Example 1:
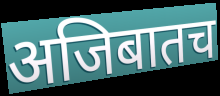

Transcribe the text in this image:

अजिबातच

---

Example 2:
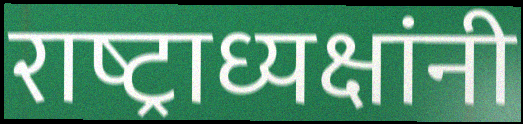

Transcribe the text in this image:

राष्ट्राध्यक्षांनी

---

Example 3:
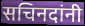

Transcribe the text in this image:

सचिनदांनी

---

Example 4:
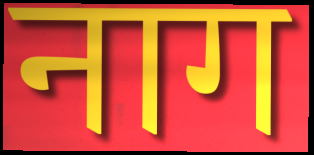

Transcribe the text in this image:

नाग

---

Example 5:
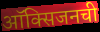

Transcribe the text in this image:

ऑक्सिजनची